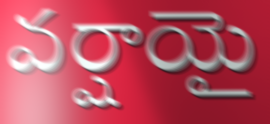
వర్షాయై